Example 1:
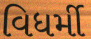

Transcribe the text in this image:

વિધર્મી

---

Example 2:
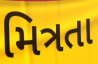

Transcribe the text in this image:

મિત્રતા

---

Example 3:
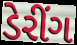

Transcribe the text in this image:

ડેરીંગ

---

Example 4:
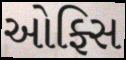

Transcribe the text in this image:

ઓફ્સિ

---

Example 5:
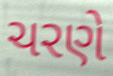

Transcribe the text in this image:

ચરણે